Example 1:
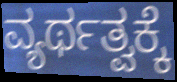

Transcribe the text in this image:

ವ್ಯರ್ಥತ್ವಕ್ಕೆ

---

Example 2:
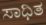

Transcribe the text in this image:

ಸಾಧಿತ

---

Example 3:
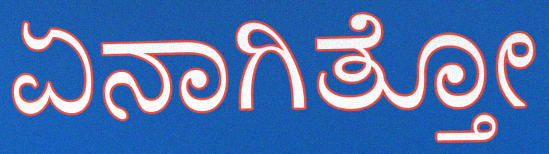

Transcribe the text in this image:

ಏನಾಗಿತ್ತೋ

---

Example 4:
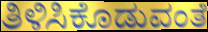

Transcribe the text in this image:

ತಿಳಿಸಿಕೊಡುವಂತೆ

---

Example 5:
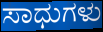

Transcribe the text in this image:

ಸಾಧುಗಳು